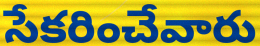
సేకరించేవారు